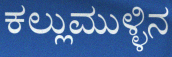
ಕಲ್ಲುಮುಳ್ಳಿನ